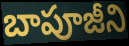
బాపూజీని